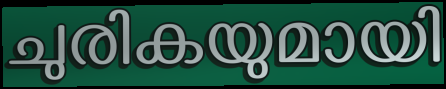
ചുരികയുമായി